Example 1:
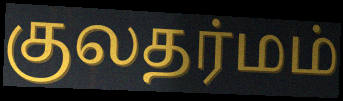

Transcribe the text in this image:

குலதர்மம்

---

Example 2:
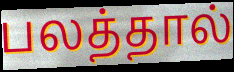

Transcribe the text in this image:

பலத்தால்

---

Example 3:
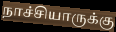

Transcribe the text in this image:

நாச்சியாருக்கு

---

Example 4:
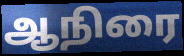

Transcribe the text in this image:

ஆநிரை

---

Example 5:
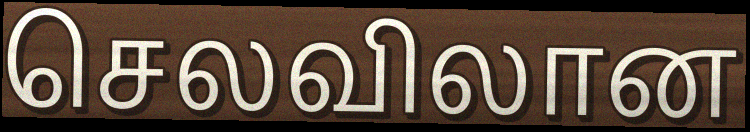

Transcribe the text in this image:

செலவிலான